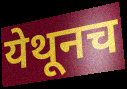
येथूनच